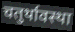
चतुर्थावस्था